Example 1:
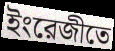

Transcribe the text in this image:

ইংরেজীতে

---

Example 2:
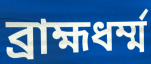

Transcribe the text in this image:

ব্রাহ্মধর্ম্ম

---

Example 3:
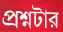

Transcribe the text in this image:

প্রশ্নটার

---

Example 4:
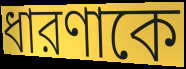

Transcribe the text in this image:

ধারণাকে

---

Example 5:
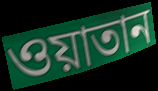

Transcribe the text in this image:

ওয়াতান